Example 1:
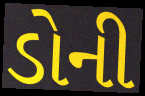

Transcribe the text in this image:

ડોની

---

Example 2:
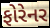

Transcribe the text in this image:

ફોરેનર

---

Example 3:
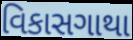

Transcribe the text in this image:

વિકાસગાથા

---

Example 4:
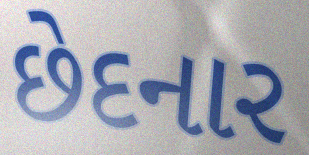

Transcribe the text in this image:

છેદનાર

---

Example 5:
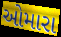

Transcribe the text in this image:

ઓમારા